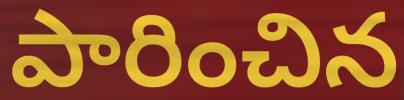
పారించిన